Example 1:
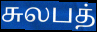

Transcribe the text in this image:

சுலபத்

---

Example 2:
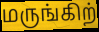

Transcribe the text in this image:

மருங்கிற்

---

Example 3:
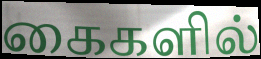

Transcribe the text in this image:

கைகளில்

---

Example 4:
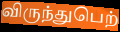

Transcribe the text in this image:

விருந்துபெற்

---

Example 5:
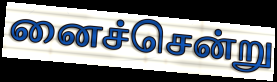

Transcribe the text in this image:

னைச்சென்று